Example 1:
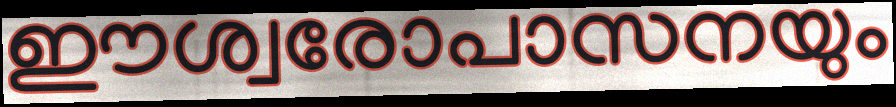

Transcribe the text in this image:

ഈശ്വരോപാസനയും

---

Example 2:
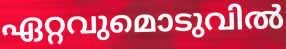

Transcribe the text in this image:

ഏറ്റവുമൊടുവിൽ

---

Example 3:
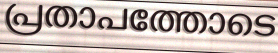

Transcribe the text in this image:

പ്രതാപത്തോടെ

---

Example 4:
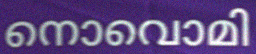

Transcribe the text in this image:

നൊവൊമി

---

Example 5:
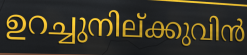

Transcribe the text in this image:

ഉറച്ചുനില്ക്കുവിൻ